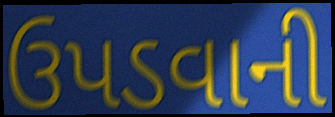
ઉપડવાની